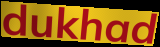
dukhad